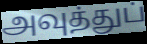
அவுத்துப்